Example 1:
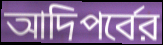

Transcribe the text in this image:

আদিপর্বের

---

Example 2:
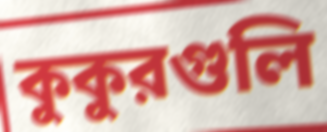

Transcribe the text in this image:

কুকুরগুলি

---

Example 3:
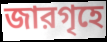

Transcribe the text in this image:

জারগৃহে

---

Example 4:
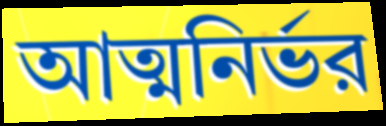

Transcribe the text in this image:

আত্মনির্ভর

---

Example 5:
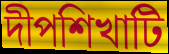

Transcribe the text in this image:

দীপশিখাটি